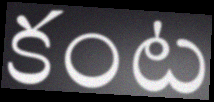
కంట